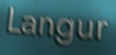
Langur